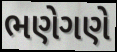
ભણેગણે